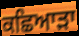
ਕਛਿਆੜਾ